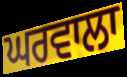
ਘਰਵਾਲਾ